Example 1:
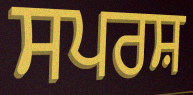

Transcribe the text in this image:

ਸਪਰਸ਼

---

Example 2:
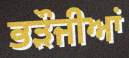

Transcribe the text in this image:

ਭੜੌਜੀਆਂ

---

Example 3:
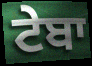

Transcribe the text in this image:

ਟੇਬਾ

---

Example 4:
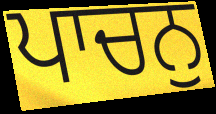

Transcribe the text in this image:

ਪਾਚਨੁ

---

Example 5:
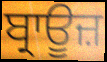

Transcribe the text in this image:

ਬ੍ਰਾਊਜ਼